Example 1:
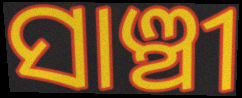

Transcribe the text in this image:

ସାଞ୍ଚୀ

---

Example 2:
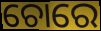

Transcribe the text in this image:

ଚୋରେ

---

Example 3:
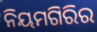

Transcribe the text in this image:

ନିୟମଗିରିର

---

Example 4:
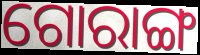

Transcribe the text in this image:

ଗୋରାଙ୍ଗ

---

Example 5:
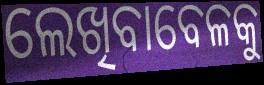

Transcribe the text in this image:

ଲେଖିବାବେଳକୁ